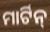
ମାର୍ଟିନ୍